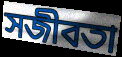
সজীবতা